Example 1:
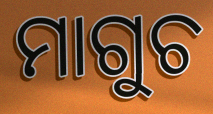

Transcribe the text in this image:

ମାଗୁଚ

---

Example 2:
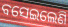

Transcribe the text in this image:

ବସେଇଲେଣି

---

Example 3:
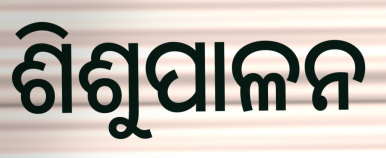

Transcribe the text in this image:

ଶିଶୁପାଳନ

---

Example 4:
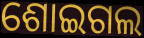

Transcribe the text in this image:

ଶୋଇଗଲ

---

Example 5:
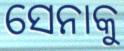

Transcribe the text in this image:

ସେନାକୁ